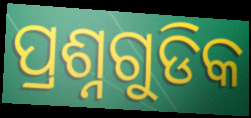
ପ୍ରଶ୍ନଗୁଡିକ